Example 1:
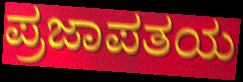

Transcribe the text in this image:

ಪ್ರಜಾಪತಯ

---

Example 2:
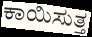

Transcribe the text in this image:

ಕಾಯಿಸುತ್ತ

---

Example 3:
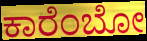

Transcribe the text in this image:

ಕಾರೆಂಬೋ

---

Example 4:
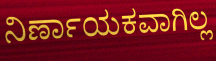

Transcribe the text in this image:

ನಿರ್ಣಾಯಕವಾಗಿಲ್ಲ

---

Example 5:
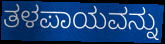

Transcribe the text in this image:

ತಳಪಾಯವನ್ನು